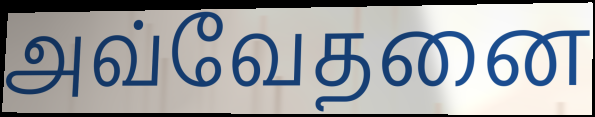
அவ்வேதனை